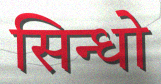
सिन्धो